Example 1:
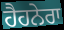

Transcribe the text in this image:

ਹੈਹਨੇਰਾ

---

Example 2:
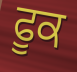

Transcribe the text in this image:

ਫੂਕ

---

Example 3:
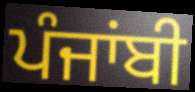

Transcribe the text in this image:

ਪੰਜਾਂਬੀ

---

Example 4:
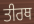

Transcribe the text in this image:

ਤੀਰਥ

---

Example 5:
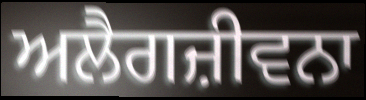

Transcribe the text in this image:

ਅਲੈਗਜ਼ੀਵਨਾ